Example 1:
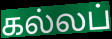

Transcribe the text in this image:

கல்லப்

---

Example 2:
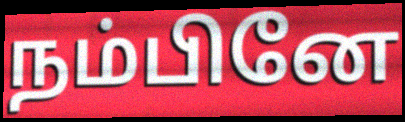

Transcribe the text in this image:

நம்பினே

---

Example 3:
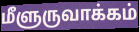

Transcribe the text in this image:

மீளுருவாக்கம்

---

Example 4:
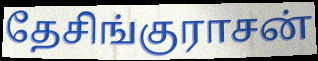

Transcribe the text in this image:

தேசிங்குராசன்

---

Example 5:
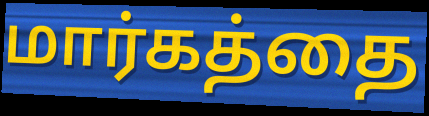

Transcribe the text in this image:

மார்கத்தை